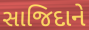
સાજિદાને